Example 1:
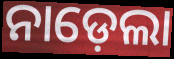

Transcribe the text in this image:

ନାଡ଼େଲା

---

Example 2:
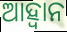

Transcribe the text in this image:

ଆହ୍ୱାନ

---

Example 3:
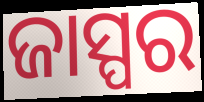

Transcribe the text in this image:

ଜାସ୍ପର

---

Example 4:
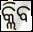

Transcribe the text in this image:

କ୍ଲିବ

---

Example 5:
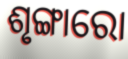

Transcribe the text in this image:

ଶୃଙ୍ଗାରୋ